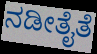
ನಡೀತೈತೆ